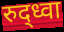
रुद्ध्वा